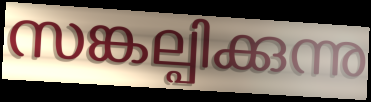
സങ്കല്പിക്കുന്നു